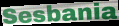
Sesbania